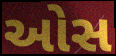
ઓસ